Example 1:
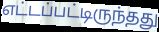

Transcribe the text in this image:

எட்டப்பட்டிருந்தது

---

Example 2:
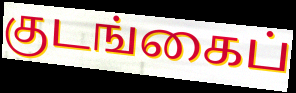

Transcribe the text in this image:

குடங்கைப்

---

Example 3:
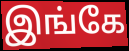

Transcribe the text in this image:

இங்கே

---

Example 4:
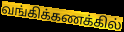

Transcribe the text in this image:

வங்கிக்கணக்கில்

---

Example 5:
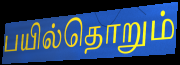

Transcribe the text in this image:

பயில்தொறும்